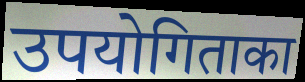
उपयोगिताका